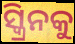
ସ୍କ୍ରିନକୁ